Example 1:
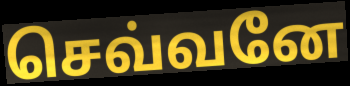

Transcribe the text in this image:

செவ்வனே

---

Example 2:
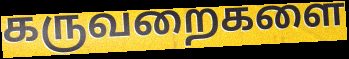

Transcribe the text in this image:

கருவறைகளை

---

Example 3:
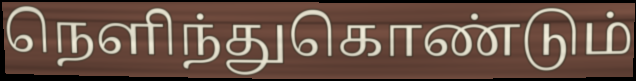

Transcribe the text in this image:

நெளிந்துகொண்டும்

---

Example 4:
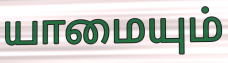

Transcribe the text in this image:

யாமையும்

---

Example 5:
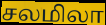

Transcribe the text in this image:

சலமிலா